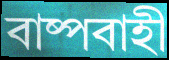
বাষ্পবাহী